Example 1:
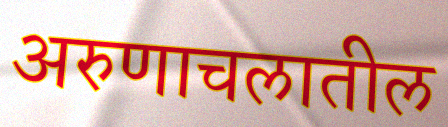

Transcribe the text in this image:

अरुणाचलातील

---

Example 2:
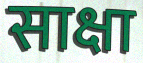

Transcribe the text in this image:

साक्षा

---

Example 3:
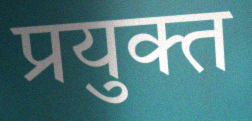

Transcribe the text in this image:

प्रयुक्त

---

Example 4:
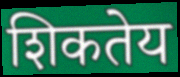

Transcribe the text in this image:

शिकतेय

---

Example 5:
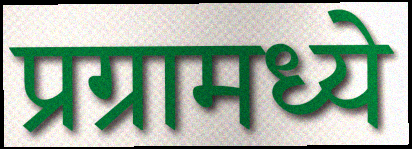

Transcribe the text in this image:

प्रग्रामध्ये